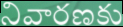
నివారణకు